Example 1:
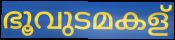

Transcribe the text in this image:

ഭൂവുടമകള്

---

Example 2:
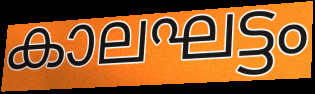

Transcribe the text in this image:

കാലഘട്ടം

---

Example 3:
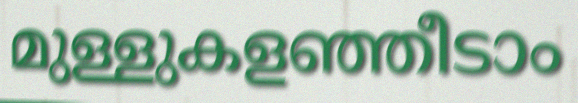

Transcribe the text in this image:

മുള്ളുകളഞ്ഞീടാം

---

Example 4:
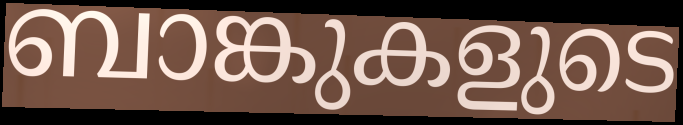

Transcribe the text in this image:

ബാങ്കുകളുടെ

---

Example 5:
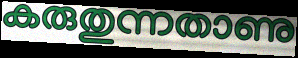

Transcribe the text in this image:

കരുതുന്നതാണു